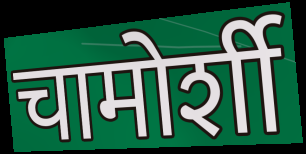
चामोर्शी